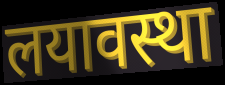
लयावस्था